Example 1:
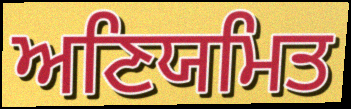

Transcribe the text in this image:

ਅਣਿਯਮਿਤ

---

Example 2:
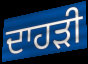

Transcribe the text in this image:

ਦਾਹੜੀ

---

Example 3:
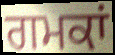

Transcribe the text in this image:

ਗਮਕਾਂ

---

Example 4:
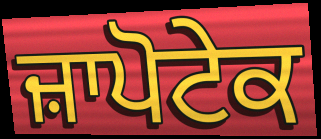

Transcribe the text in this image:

ਜ਼ਾਪੋਟੇਕ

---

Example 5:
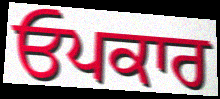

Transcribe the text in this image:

ਓਪਕਾਰ